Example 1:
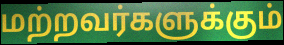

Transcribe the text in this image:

மற்றவர்களுக்கும்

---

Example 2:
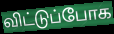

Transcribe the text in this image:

விட்டுப்போக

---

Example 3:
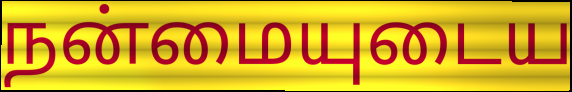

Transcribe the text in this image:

நன்மையுடைய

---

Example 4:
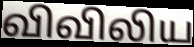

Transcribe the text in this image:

விவிலிய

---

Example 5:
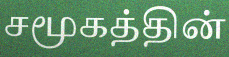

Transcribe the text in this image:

சமூகத்தின்